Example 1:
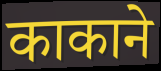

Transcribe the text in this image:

काकाने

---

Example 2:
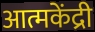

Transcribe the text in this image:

आत्मकेंद्री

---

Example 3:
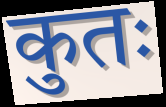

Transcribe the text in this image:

कुतः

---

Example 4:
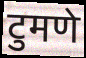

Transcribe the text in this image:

टुमणे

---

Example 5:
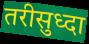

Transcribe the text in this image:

तरीसुध्दा